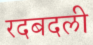
रदबदली